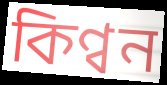
কিণ্বন